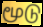
மூடு